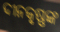
ଦୀନକୃଷ୍ଣଙ୍କ